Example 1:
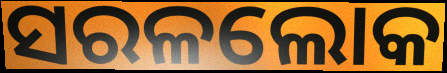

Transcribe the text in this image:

ସରଳଲୋକ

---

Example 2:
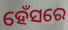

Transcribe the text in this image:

ହେଁସରେ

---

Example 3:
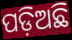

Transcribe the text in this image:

ପଡ଼ିଅଛି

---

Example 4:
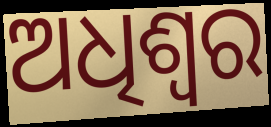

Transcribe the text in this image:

ଅଧିଶ୍ବର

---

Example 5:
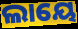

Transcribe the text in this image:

ଲାୟେ